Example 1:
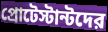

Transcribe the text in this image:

প্রোটেস্টান্টদের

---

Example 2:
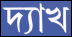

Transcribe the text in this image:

দ্যাখ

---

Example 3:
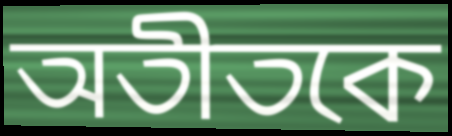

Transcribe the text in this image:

অতীতকে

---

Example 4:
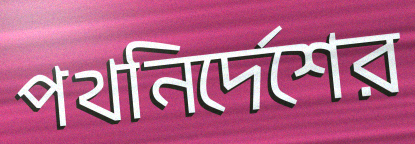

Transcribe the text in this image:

পথনির্দেশের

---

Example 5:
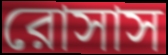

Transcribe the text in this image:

রোসাস